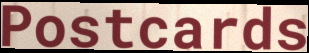
Postcards